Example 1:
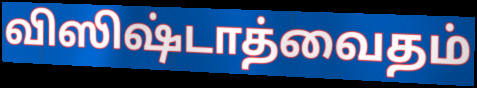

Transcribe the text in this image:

விஸிஷ்டாத்வைதம்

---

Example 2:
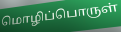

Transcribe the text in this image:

மொழிப்பொருள்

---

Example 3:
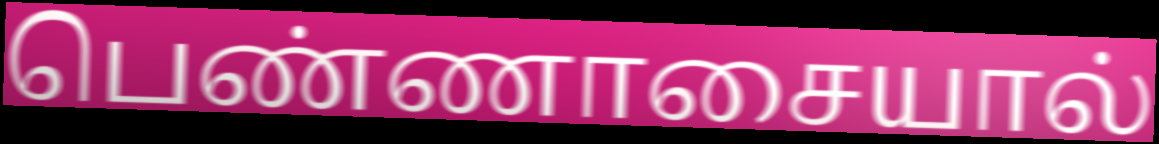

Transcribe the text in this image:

பெண்ணாசையால்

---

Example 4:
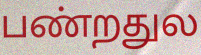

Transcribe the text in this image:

பண்றதுல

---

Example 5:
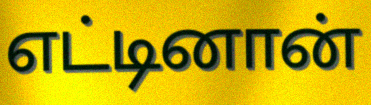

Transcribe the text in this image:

எட்டினான்